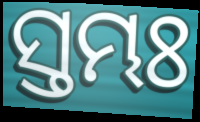
ସ୍ତମ୍ଭଃ